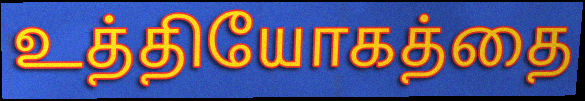
உத்தியோகத்தை